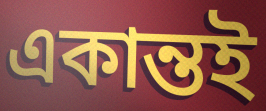
একান্তই